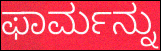
ಫಾರ್ಮನ್ನು